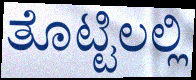
ತೊಟ್ಟಿಲಲ್ಲಿ